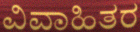
ವಿವಾಹಿತರ